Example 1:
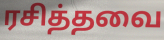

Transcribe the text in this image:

ரசித்தவை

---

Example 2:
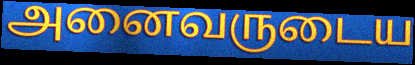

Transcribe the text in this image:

அனைவருடைய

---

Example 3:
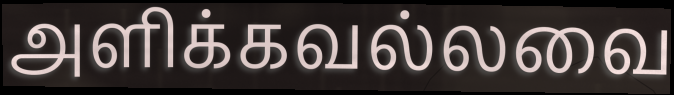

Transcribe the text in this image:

அளிக்கவல்லவை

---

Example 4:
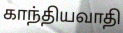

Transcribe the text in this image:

காந்தியவாதி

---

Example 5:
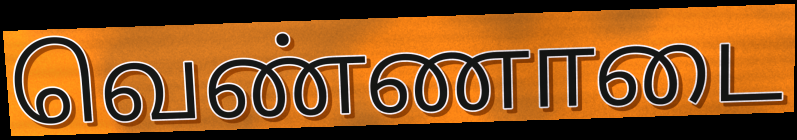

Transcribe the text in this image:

வெண்ணாடை